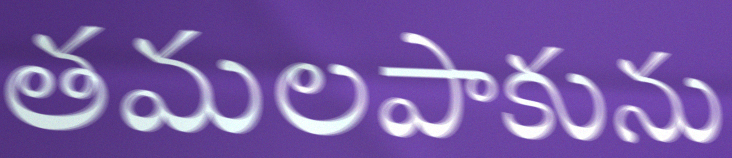
తమలపాకును